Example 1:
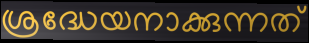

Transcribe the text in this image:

ശ്രദ്ധേയനാക്കുന്നത്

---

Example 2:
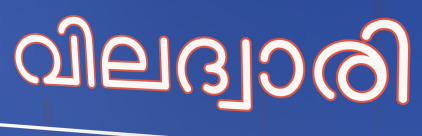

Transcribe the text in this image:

വിലദ്വാരി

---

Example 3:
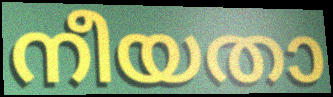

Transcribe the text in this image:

നീയതാ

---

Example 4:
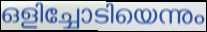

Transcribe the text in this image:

ഒളിച്ചോടിയെന്നും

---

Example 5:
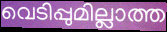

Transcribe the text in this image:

വെടിപ്പുമില്ലാത്ത